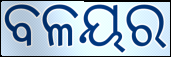
ବଳୟର